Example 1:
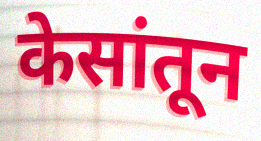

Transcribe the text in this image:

केसांतून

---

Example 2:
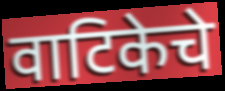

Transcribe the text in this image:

वाटिकेचे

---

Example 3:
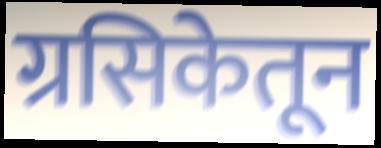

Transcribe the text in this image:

ग्रसिकेतून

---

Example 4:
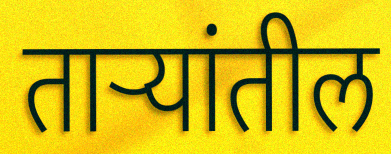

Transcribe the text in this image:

ताऱ्यांतील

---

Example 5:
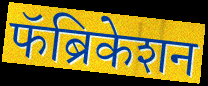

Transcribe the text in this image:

फॅब्रिकेशन